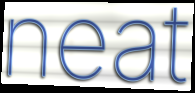
neat